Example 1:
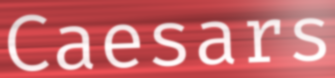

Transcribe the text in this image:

Caesars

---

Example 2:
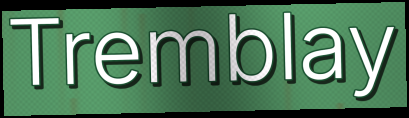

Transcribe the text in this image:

Tremblay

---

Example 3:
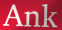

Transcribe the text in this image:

Ank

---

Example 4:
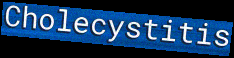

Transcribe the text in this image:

Cholecystitis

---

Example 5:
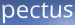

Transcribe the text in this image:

pectus